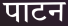
पाटन